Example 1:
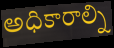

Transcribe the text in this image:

అధికారాల్ని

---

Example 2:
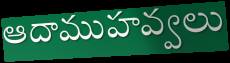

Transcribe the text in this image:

ఆదాముహవ్వలు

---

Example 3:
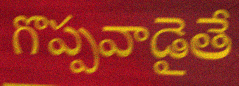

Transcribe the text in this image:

గొప్పవాడైతే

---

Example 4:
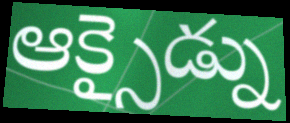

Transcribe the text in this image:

ఆక్సైడ్ను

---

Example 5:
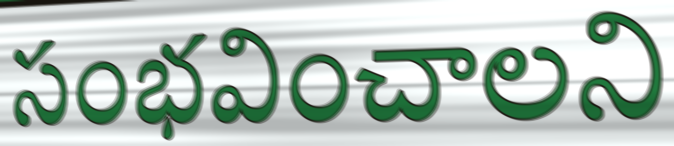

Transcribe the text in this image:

సంభవించాలని